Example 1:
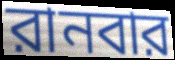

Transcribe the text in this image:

রানবার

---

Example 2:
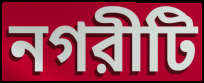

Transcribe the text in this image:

নগরীটি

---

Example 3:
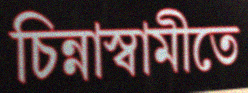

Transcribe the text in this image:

চিন্নাস্বামীতে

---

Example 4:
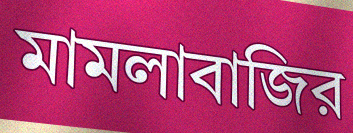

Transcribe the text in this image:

মামলাবাজির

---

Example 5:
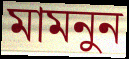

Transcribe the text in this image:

মামনুন